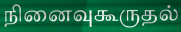
நினைவுகூருதல்